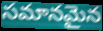
సమానమైన